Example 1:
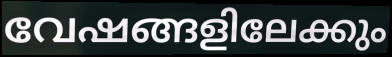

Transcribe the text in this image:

വേഷങ്ങളിലേക്കും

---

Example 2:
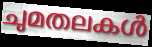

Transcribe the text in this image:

ചുമതലകൾ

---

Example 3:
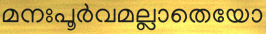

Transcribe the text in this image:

മനഃപൂർവമല്ലാതെയോ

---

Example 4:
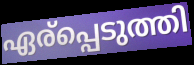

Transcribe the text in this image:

ഏര്പ്പെടുത്തി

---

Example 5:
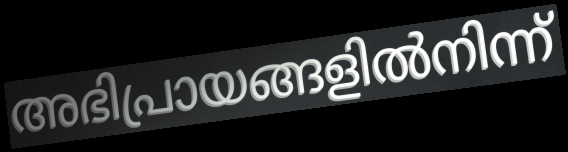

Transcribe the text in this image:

അഭിപ്രായങ്ങളിൽനിന്ന്